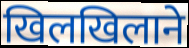
खिलखिलाने